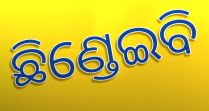
ଛିଣ୍ଡେଇବି